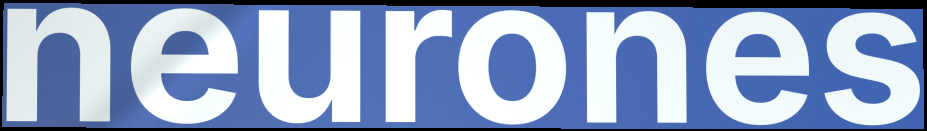
neurones